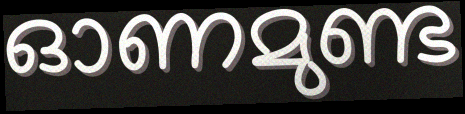
ഓണമുണ്ട